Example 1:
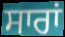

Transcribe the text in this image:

ਸਾਰਾਂ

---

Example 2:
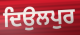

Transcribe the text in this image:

ਦਿਉਲਪੁਰ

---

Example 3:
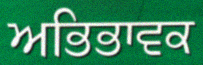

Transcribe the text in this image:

ਅਭਿਭਾਵਕ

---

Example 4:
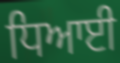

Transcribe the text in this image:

ਧਿਆਈ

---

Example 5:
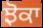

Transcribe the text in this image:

ਝੋਕਾ